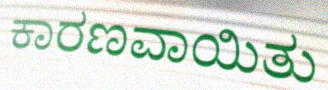
ಕಾರಣವಾಯಿತು